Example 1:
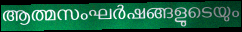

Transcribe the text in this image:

ആത്മസംഘർഷങ്ങളുടെയും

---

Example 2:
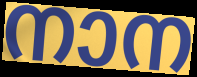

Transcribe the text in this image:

നാന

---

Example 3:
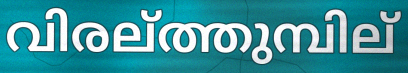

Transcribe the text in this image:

വിരല്ത്തുമ്പില്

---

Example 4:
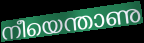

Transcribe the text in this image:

നീയെന്താണു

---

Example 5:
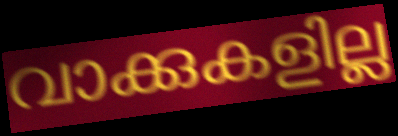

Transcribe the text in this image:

വാക്കുകളില്ല